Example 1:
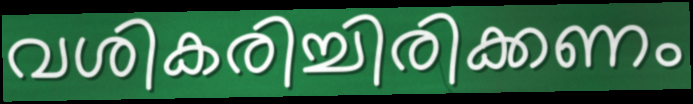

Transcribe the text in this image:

വശികരിച്ചിരിക്കണം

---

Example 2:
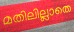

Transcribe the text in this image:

മതിലില്ലാതെ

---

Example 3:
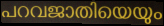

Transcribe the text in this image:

പറവജാതിയെയും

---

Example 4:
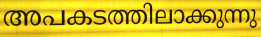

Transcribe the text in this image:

അപകടത്തിലാക്കുന്നു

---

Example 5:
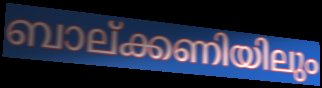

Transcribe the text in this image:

ബാല്ക്കണിയിലും